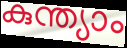
കുന്ത്യാം